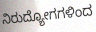
ನಿರುದ್ಯೋಗಗಳಿಂದ